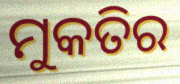
ମୁକତିର